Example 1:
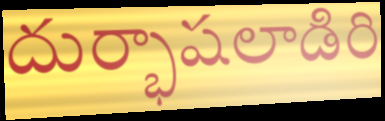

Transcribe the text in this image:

దుర్భాషలాడిరి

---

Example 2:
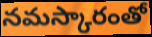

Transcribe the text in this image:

నమస్కారంతో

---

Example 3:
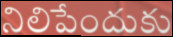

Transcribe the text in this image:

నిలిపేందుకు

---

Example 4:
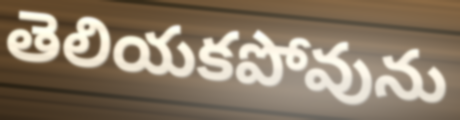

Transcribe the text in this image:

తెలియకపోవును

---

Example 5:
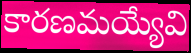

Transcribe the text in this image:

కారణమయ్యేవి